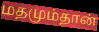
மதமும்தான்